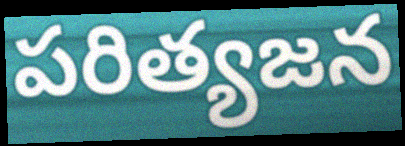
పరిత్యజన